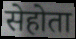
सेहोता